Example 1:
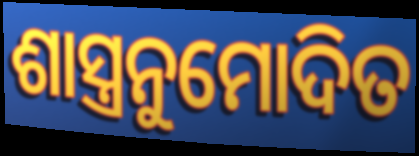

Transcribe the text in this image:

ଶାସ୍ତ୍ରନୁମୋଦିତ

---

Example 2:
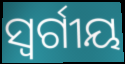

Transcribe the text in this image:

ସ୍ୱର୍ଗୀୟ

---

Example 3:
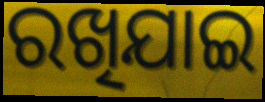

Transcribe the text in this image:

ରଖିଯାଇ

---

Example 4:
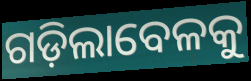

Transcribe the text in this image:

ଗଡ଼ିଲାବେଳକୁ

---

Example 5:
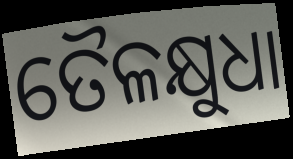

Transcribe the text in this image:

ତୈଳକ୍ଷୁଧା